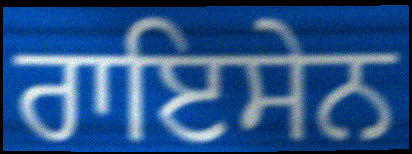
ਰਾਇਸੇਨ